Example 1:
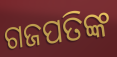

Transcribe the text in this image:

ଗଜପତିଙ୍କ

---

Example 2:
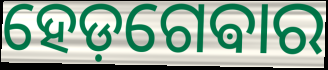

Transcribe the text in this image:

ହେଡ଼ଗେଵାର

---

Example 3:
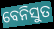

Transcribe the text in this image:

ବେନିସୁତ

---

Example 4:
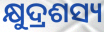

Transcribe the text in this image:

କ୍ଷୁଦ୍ରଶସ୍ୟ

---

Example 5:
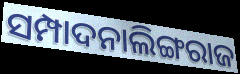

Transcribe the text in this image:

ସମ୍ପାଦନାଲିଙ୍ଗରାଜ